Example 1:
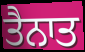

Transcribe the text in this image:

ਤੈਨਾਤ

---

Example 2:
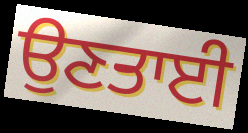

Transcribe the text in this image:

ਉਣਤਾਈ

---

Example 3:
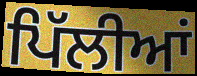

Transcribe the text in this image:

ਪਿੱਲੀਆਂ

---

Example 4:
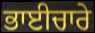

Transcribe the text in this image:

ਭਾਈਚਾਰੇ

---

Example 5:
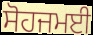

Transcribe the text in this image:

ਸੋਹਜਮਈ